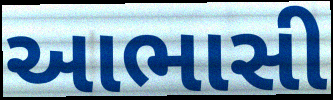
આભાસી